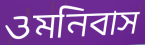
ওমনিবাস